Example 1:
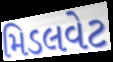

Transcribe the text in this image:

મિડલવેટ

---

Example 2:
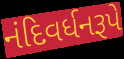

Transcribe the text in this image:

નંદિવર્ધનરૂપે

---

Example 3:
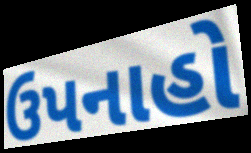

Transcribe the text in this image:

ઉપનાહો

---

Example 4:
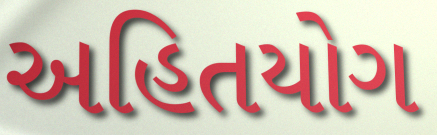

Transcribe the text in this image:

અહિતયોગ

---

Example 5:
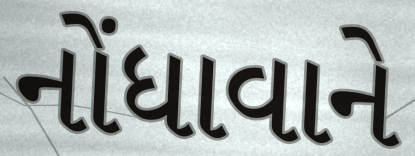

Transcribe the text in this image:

નોંધાવાને